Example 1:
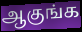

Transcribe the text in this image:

ஆகுங்க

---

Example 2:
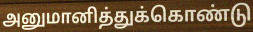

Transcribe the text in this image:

அனுமானித்துக்கொண்டு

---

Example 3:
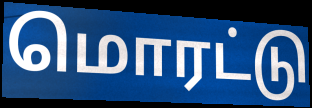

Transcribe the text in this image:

மொரட்டு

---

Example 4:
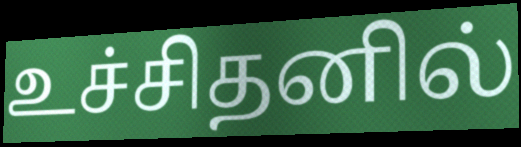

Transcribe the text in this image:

உச்சிதனில்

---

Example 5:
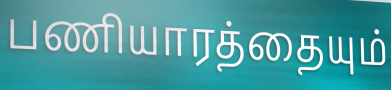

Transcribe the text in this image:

பணியாரத்தையும்